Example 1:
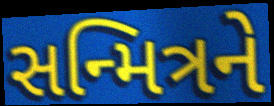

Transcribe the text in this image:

સન્મિત્રને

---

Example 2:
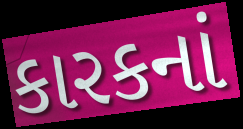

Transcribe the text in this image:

કારકનાં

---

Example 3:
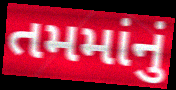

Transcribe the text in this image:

તમમાંનું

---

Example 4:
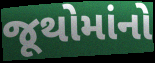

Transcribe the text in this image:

જૂથોમાંનો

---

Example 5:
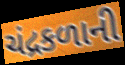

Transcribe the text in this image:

ચંદ્રકળાની